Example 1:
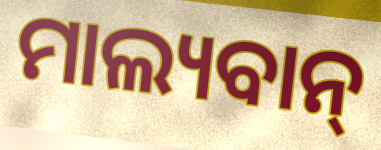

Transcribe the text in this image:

ମାଲ୍ୟବାନ୍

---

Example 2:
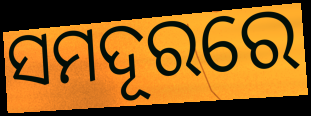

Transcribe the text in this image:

ସମଦୂରରେ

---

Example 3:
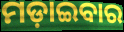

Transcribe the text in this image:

ମଡ଼ାଇବାର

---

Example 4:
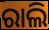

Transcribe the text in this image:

ରାଲି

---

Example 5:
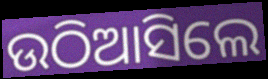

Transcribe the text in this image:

ଉଠିଆସିଲେ